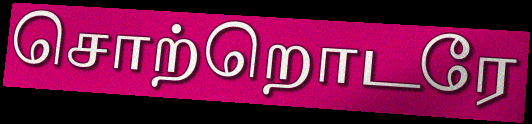
சொற்றொடரே